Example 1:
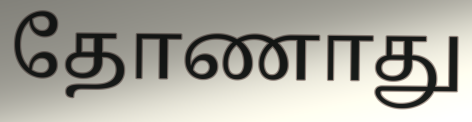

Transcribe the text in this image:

தோணாது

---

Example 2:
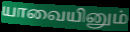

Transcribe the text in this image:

யாவையினும்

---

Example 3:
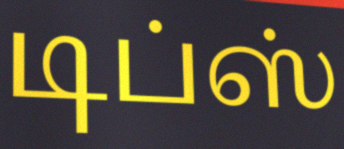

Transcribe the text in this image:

டிப்ஸ்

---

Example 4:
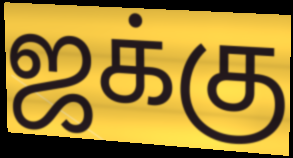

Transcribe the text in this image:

ஜக்கு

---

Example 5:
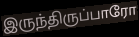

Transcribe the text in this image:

இருந்திருப்பாரோ